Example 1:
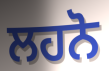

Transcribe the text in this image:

ਲਹਨੋ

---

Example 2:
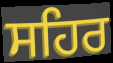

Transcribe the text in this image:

ਸਹਿਰ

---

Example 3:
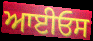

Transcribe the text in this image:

ਆਈਓਸ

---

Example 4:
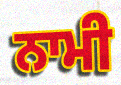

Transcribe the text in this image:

ਨਾਮੀ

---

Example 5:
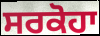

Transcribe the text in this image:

ਸਰਕੋਹਾ